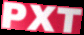
PXT